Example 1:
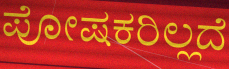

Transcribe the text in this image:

ಪೋಷಕರಿಲ್ಲದೆ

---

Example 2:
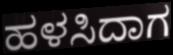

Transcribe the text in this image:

ಹಳಸಿದಾಗ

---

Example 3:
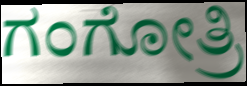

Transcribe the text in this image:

ಗಂಗೋತ್ರಿ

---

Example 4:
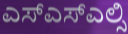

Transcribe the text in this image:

ಎಸ್ಎಸ್ಎಲ್ಸಿ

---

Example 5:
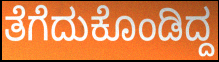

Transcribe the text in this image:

ತೆಗೆದುಕೊಂಡಿದ್ದ